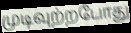
முடிவுற்றபோது